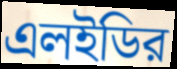
এলইডির